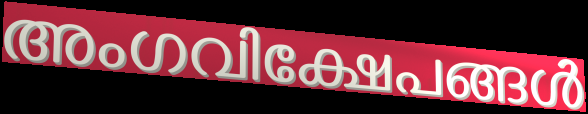
അംഗവിക്ഷേപങ്ങൾ